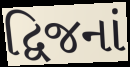
દ્વિજનાં